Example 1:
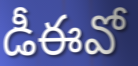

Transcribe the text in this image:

డీఈవో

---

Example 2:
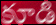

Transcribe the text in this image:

కూడి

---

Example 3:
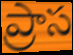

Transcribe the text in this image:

ప్రాస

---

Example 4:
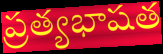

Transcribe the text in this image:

ప్రత్యభాషత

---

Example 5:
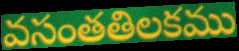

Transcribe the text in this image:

వసంతతిలకము